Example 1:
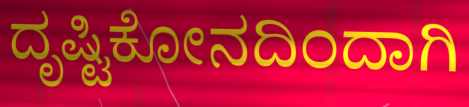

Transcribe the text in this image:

ದೃಷ್ಟಿಕೋನದಿಂದಾಗಿ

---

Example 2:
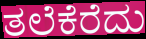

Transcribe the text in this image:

ತಲೆಕೆರೆದು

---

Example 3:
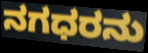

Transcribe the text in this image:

ನಗಧರನು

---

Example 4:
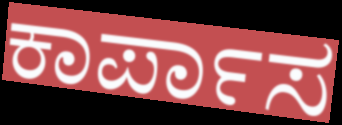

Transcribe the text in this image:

ಕಾರ್ಪಾಸ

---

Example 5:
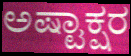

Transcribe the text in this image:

ಅಷ್ಟಾಕ್ಷರ